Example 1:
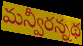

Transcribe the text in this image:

మన్వీరన్నథ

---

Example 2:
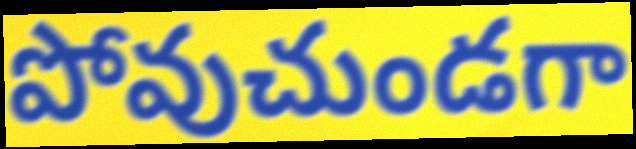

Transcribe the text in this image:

పోవుచుండగా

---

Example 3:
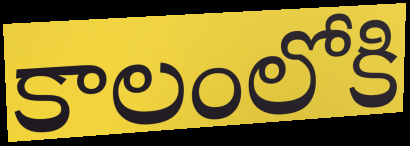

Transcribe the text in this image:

కాలంలోకి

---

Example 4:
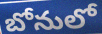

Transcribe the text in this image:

బోనులో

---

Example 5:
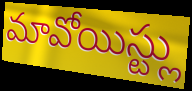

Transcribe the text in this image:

మావోయిస్ట్లు